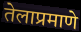
तेलाप्रमाणे